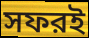
সফরই